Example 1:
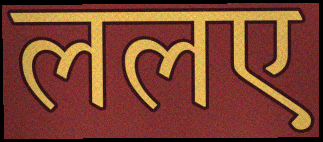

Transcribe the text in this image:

ललए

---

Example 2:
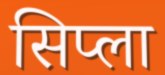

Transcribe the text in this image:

सिप्ला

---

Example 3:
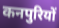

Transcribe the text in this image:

कनपुरियों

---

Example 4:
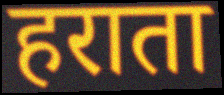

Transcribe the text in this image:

हराता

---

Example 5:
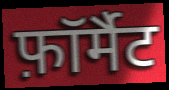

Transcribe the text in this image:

फ़ॉर्मैट